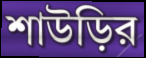
শাউড়ির